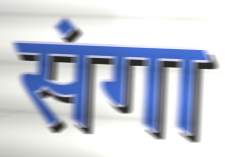
संगा